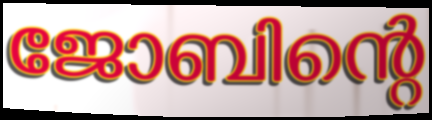
ജോബിന്റെ